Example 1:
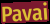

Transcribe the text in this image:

Pavai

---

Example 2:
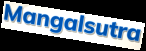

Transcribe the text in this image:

Mangalsutra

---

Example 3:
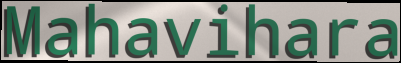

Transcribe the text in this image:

Mahavihara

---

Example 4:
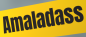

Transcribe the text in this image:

Amaladass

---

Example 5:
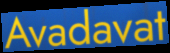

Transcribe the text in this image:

Avadavat